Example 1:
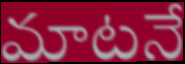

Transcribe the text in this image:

మాటనే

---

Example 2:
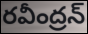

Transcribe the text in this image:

రవీంద్రన్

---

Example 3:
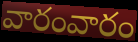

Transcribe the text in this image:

వారంవారం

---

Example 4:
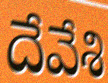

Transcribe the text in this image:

దేవేశి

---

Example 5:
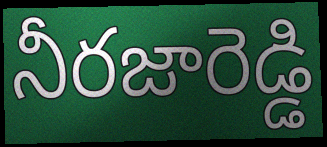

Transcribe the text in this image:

నీరజారెడ్డి